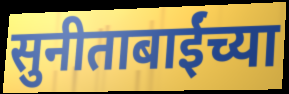
सुनीताबाईंच्या